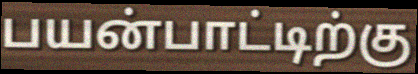
பயன்பாட்டிற்கு